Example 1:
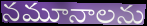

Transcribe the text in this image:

నమూనాలను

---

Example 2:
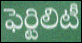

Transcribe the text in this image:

ఫెర్టిలిటీ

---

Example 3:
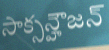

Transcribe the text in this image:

సాక్సన్హౌజన్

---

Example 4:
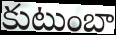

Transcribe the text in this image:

కుటుంబా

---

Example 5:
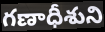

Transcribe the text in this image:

గణాధీశుని